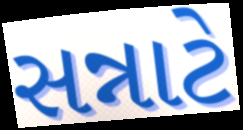
સન્નાટે